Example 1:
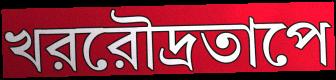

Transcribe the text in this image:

খররৌদ্রতাপে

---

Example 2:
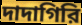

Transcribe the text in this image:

দাদাগিরি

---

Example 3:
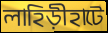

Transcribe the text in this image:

লাহিড়ীহাটে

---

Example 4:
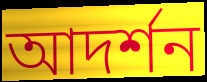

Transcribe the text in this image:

আদর্শন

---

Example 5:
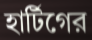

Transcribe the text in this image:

হার্টিগের